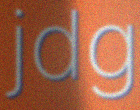
jdg